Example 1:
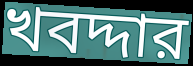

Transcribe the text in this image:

খবদ্দার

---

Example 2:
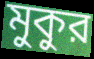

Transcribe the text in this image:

মুকুর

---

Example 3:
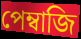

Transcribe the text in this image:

পেম্বাজি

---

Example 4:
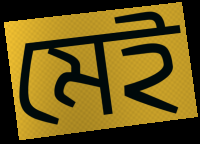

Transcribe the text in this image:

মেই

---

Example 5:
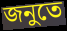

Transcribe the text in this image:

জনুতে